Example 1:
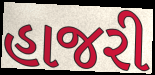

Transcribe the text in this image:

હાજરી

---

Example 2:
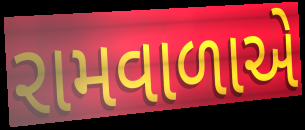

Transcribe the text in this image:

રામવાળાએ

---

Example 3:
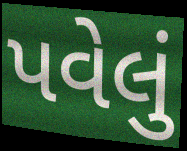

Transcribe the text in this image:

પવેલું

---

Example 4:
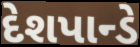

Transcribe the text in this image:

દેશપાન્ડે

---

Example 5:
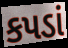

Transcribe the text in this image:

કપડાં